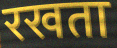
रखता